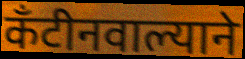
कँटीनवाल्याने